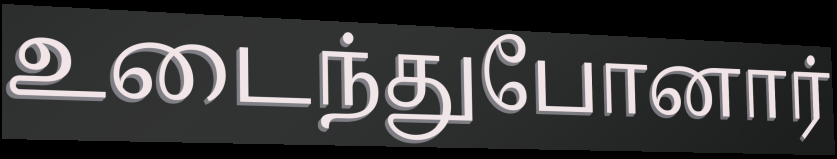
உடைந்துபோனார்